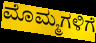
ಮೊಮ್ಮಗಳಿಗೆ